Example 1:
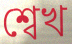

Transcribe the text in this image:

শ্বেখ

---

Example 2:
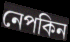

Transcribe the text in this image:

নেপকিন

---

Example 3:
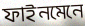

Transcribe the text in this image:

ফাইনমেনে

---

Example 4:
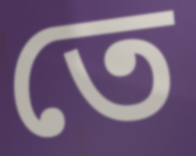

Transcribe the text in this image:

তে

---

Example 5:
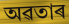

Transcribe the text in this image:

অৱতাৰ